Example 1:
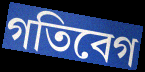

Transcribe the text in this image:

গতিবেগ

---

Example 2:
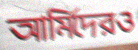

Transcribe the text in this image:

আর্মিদেরও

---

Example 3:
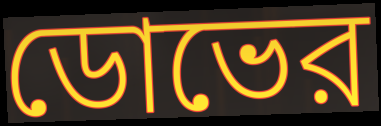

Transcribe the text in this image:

ডোভের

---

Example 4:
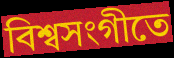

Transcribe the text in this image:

বিশ্বসংগীতে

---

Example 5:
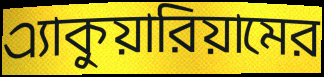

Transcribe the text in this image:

এ্যাকুয়ারিয়ামের